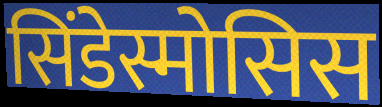
सिंडेस्मोसिस